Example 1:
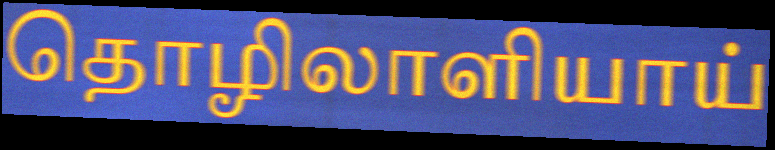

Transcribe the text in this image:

தொழிலாளியாய்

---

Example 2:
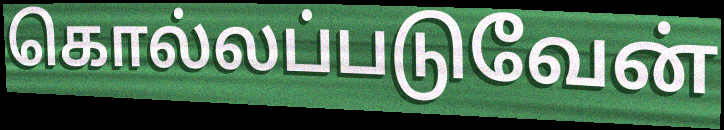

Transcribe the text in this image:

கொல்லப்படுவேன்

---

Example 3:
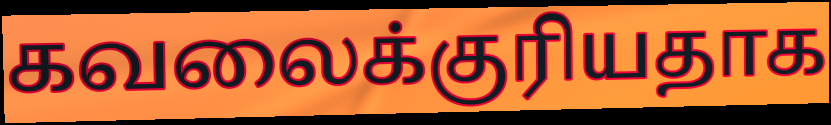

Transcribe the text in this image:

கவலைக்குரியதாக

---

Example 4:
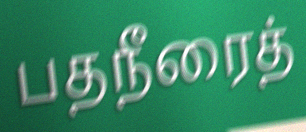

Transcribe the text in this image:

பதநீரைத்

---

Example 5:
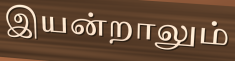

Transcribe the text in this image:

இயன்றாலும்